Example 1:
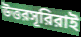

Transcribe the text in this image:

উত্তরসূরিরাই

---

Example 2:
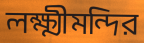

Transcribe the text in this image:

লক্ষ্মীমন্দির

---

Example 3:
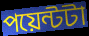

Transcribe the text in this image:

পয়েন্টটা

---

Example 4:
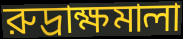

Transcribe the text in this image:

রুদ্রাক্ষমালা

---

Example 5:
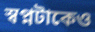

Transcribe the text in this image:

স্বপ্নটাকেও